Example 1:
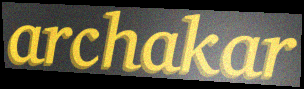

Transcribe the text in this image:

archakar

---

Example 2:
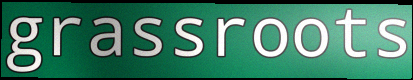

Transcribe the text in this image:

grassroots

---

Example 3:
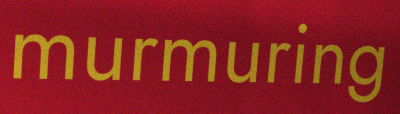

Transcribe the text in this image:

murmuring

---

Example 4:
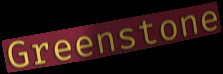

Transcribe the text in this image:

Greenstone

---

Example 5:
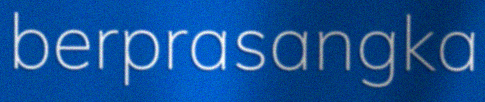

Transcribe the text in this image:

berprasangka